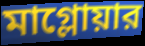
মাগ্লোয়ার